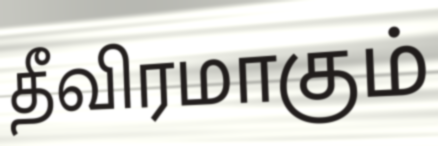
தீவிரமாகும்